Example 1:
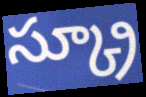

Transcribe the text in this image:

స్క్రూ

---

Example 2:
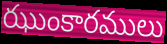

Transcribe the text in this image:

ఝుంకారములు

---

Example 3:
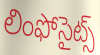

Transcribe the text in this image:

లింఫోసైట్స్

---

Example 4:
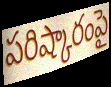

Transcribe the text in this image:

పరిష్కారంపై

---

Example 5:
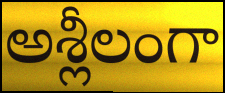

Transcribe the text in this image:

అశ్లీలంగా